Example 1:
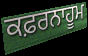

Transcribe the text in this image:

ਕਫ਼ਰਨਾਹੂਮ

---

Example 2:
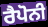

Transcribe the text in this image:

ਰੈਪੋਨੀ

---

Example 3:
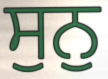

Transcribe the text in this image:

ਸੁਨੁ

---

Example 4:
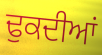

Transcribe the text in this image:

ਢੁਕਦੀਆਂ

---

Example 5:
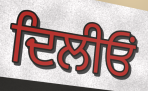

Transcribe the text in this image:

ਦਿਲੀਓਂ